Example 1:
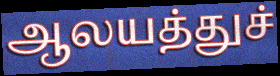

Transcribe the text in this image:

ஆலயத்துச்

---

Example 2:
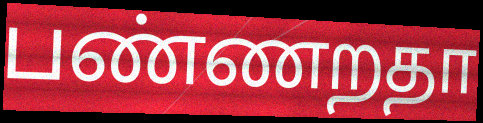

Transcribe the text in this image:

பண்ணறதா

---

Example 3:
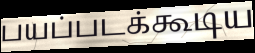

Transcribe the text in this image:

பயப்படக்கூடிய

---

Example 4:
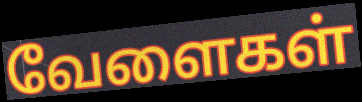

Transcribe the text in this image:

வேளைகள்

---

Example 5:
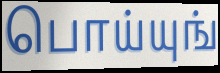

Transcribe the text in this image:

பொய்யுங்